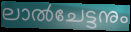
ലാൽചേട്ടനും